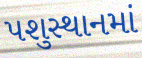
પશુસ્થાનમાં